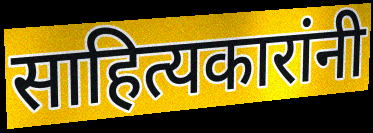
साहित्यकारांनी